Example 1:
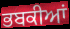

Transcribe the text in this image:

ਭਬਕੀਆਂ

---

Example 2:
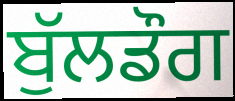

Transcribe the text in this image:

ਬੁੱਲਡੌਗ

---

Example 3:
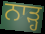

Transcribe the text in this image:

ਨਾੜ੍ਹ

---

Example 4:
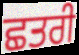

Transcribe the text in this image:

ਛਤਰੀ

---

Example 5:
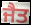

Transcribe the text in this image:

ਜੈਤ